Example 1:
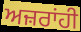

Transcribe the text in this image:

ਅਜ਼ਰਾਂਹੀ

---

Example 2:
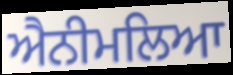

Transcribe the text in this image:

ਐਨੀਮਲਿਆ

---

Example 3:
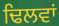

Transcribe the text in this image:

ਢਿਲਵਾਂ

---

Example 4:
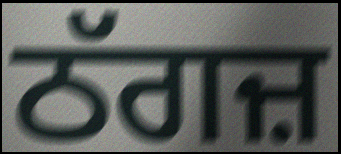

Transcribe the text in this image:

ਠੱਗਜ਼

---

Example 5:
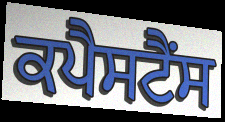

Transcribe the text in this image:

ਕਪੈਸਟੈਂਸ